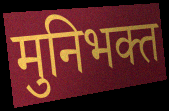
मुनिभक्त